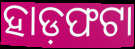
ହାଡ଼ଫଟା